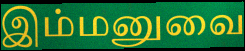
இம்மனுவை